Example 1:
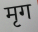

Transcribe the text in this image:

मृग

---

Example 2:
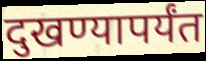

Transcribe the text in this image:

दुखण्यापर्यंत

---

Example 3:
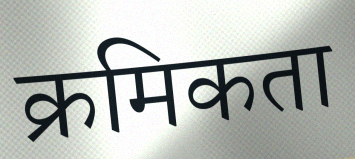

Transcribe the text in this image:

क्रमिकता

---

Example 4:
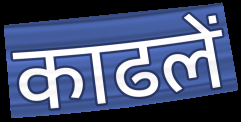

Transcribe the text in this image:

काढलें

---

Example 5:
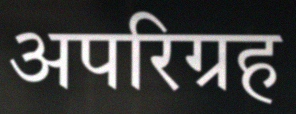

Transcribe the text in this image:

अपरिग्रह